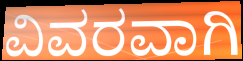
ವಿವರವಾಗಿ